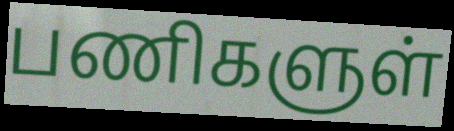
பணிகளுள்